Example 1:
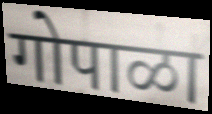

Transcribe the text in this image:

गोपाळा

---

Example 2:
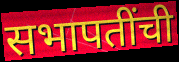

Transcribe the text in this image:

सभापतींची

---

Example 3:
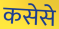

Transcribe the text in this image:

कसेसे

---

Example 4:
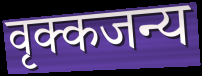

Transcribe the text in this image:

वृक्कजन्य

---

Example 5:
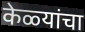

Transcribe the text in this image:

केळ्यांचा